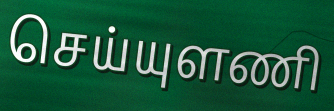
செய்யுளணி